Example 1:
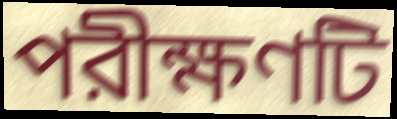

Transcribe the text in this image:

পরীক্ষণটি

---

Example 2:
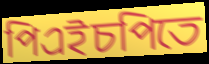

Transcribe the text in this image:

পিএইচপিতে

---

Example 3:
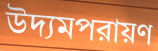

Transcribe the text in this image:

উদ্যমপরায়ণ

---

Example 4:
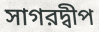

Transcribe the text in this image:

সাগরদ্বীপ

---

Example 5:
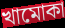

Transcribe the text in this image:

খামোকা